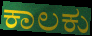
ಕಾಲಕು